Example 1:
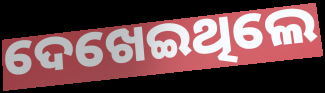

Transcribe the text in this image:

ଦେଖେଇଥିଲେ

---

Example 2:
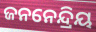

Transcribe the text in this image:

ଜନନେନ୍ଦ୍ରିୟ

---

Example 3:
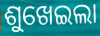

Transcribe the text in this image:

ଶୁଖେଇଲା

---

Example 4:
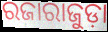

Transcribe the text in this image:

ରଜାରାଜୁଡ଼ା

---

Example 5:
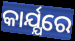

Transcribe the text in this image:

କାର୍ଯ୍ଯରେ